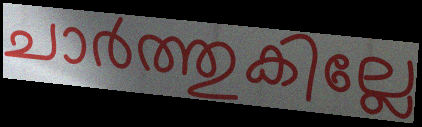
ചാർത്തുകില്ലേ